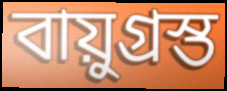
বায়ুগ্রস্ত